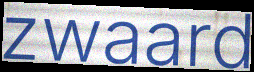
zwaard